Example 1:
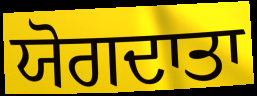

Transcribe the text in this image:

ਯੋਗਦਾਤਾ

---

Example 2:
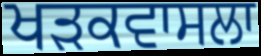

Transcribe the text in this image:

ਖੜਕਵਾਸਲਾ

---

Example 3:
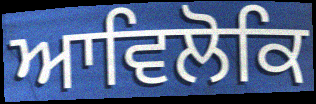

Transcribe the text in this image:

ਆਵਿਲੋਕਿ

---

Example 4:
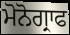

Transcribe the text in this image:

ਮੋਨੋਗ੍ਰਾਫ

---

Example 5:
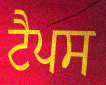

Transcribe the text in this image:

ਟੈਪਸ